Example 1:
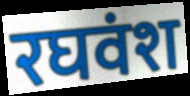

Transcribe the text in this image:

रघवंश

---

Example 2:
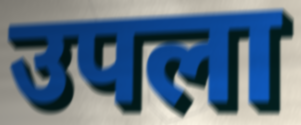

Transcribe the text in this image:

उपला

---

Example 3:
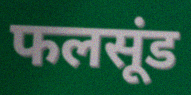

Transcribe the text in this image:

फलसूंड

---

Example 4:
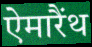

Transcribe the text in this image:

ऐमारैंथ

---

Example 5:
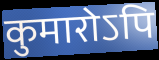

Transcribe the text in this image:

कुमारोऽपि